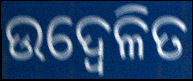
ଉଦ୍ବେଳିତ